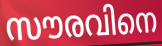
സൗരവിനെ